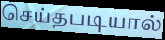
செய்தபடியால்